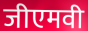
जीएमवी